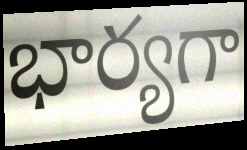
భార్యగా